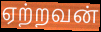
ஏற்றவன்